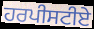
ਹਰਪੀਸਟੀਏ